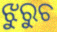
ଝୁରୁଚ